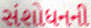
સંશોધનની